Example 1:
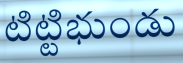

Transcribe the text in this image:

టిట్టిభుండు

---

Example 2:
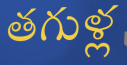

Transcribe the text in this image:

తగుళ్ల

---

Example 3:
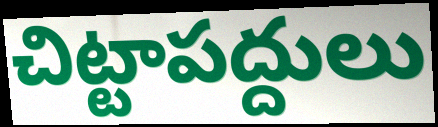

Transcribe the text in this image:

చిట్టాపద్దులు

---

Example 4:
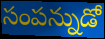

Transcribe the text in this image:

సంపన్నుడో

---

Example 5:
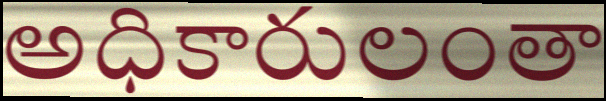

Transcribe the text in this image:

అధికారులంతా